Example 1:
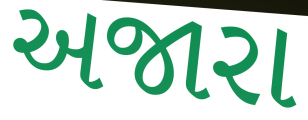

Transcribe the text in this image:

અજારા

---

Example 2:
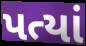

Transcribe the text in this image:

પત્યાં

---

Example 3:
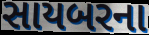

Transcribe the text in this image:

સાયબરના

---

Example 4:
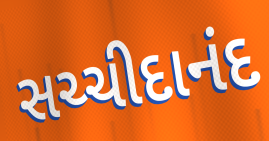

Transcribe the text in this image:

સચ્ચીદાનંદ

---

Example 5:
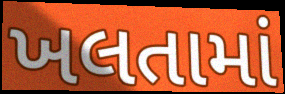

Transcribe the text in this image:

ખલતામાં